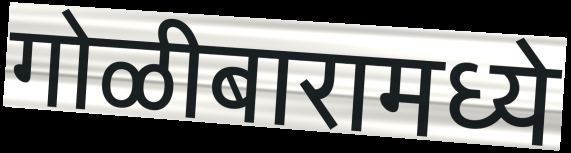
गोळीबारामध्ये